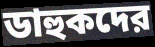
ডাহুকদের